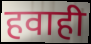
हवाही